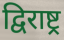
द्विराष्ट्र